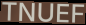
TNUEF